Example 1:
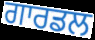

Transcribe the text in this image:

ਗਾਰਡਲ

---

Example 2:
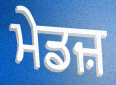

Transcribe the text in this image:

ਮੇਡਜ਼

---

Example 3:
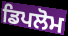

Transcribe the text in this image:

ਡਿਪਲੋਮ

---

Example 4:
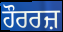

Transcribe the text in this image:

ਹੌਰਰਜ਼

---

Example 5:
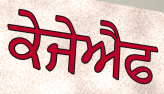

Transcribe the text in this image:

ਕੇਜੇਐਫ